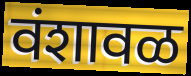
वंशावळ